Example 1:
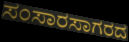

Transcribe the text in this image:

ಸಂಸಾರಸಾಗರದ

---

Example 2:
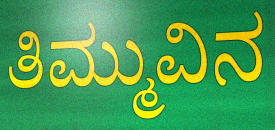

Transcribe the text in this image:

ತಿಮ್ಮುವಿನ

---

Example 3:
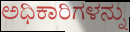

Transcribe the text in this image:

ಅಧಿಕಾರಿಗಳನ್ನು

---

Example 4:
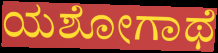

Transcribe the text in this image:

ಯಶೋಗಾಥೆ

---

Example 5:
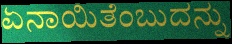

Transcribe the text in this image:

ಏನಾಯಿತೆಂಬುದನ್ನು